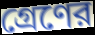
গ্রেণের